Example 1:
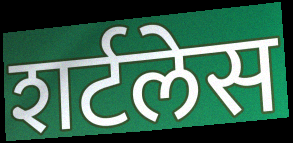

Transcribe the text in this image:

शर्टलेस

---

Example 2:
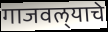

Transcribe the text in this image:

गाजवल्याचे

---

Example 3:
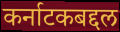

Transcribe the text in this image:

कर्नाटकबद्दल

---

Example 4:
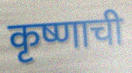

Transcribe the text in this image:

कृष्णाची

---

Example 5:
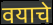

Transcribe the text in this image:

वयाचे